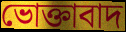
ভোক্তাবাদ